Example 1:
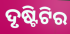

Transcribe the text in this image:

ଦୃଷ୍ଟିଟିର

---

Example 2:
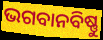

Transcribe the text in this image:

ଭଗବାନବିଷ୍ଣୁ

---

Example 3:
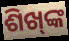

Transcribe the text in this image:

ଶିଖ୍‍ଙ୍କ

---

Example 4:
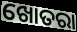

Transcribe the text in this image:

ଖୋତରା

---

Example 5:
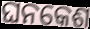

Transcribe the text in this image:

ଘନକେଶ